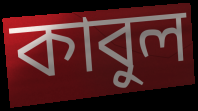
কাবুল